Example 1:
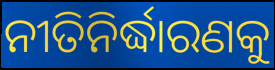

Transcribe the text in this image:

ନୀତିନିର୍ଦ୍ଧାରଣକୁ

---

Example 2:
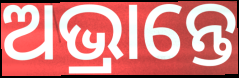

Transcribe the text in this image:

ଅଭ୍ରାନ୍ତେ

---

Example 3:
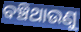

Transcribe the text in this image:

ବଞ୍ଚିଥାଉଣୁ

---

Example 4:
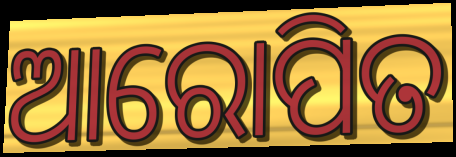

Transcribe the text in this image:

ଆରୋପିତ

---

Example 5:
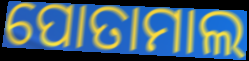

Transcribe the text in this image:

ପୋତାମାଲ